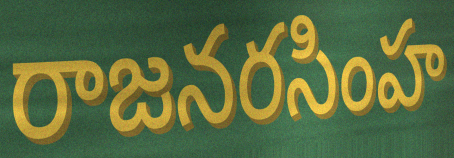
రాజనరసింహ